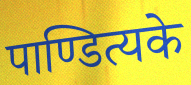
पाण्डित्यके